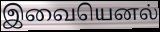
இவையெனல்